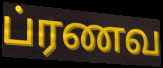
ப்ரணவ